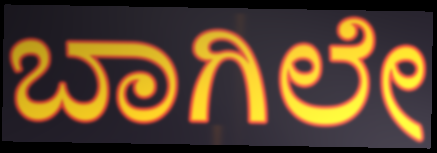
ಬಾಗಿಲೇ